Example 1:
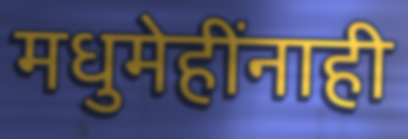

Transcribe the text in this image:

मधुमेहींनाही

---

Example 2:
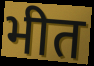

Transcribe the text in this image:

भीत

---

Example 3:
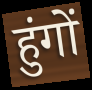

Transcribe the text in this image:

हुंगों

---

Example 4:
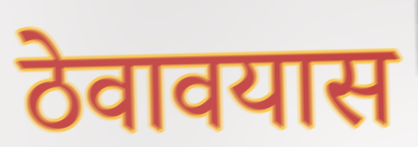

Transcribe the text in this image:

ठेवावयास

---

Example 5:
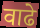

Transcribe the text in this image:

वाढे